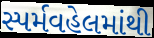
સ્પર્મવહેલમાંથી